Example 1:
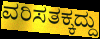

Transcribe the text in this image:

ವರಿಸತಕ್ಕದ್ದು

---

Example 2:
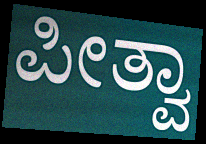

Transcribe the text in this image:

ಪೀತ್ವಾ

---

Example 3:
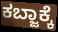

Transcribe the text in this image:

ಕಬ್ಜಾಕ್ಕೆ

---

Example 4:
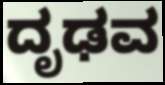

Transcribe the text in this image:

ದೃಢವ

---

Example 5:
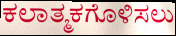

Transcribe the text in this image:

ಕಲಾತ್ಮಕಗೊಳಿಸಲು